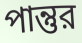
পান্তুর